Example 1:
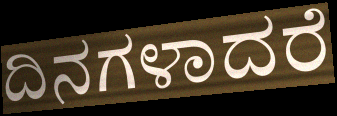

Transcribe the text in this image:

ದಿನಗಳಾದರೆ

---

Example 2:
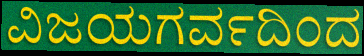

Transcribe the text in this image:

ವಿಜಯಗರ್ವದಿಂದ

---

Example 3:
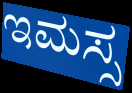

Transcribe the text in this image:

ಇಮಸ್ಸ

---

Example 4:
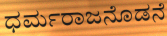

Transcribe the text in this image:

ಧರ್ಮರಾಜನೊಡನೆ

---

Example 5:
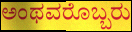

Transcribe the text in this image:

ಅಂಥವರೊಬ್ಬರು